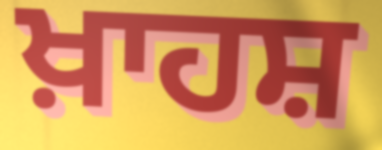
ਖ਼ਾਹਸ਼